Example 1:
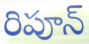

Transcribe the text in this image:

రిపూన్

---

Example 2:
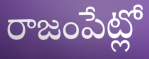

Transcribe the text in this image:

రాజంపేట్లో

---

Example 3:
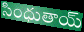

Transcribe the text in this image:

సింధుతాయ్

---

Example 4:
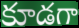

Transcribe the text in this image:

కూడగా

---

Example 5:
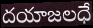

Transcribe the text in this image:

దయాజలధే